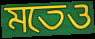
মতেও